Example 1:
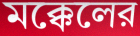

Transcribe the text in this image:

মক্কেলের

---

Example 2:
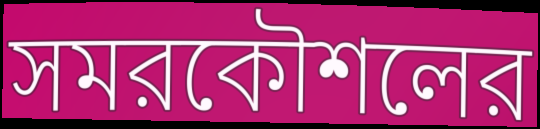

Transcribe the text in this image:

সমরকৌশলের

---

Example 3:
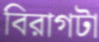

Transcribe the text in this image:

বিরাগটা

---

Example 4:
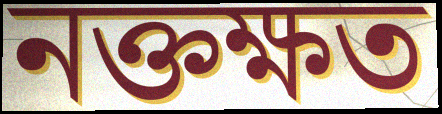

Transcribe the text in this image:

নক্তক্ষত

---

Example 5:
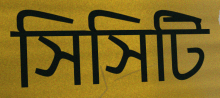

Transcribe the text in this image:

সিসিটি